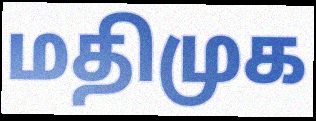
மதிமுக